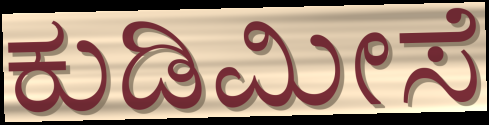
ಕುಡಿಮೀಸೆ